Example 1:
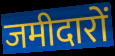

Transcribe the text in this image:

जमीदारों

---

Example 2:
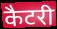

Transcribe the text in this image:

कैटरी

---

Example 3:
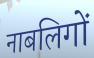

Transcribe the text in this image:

नाबलिगों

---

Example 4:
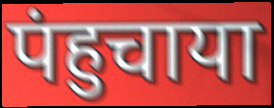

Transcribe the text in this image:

पंहुचाया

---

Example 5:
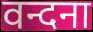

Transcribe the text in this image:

वन्दना